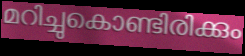
മറിച്ചുകൊണ്ടിരിക്കും